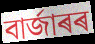
বাৰ্জাৰৰ